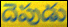
దెపుడు